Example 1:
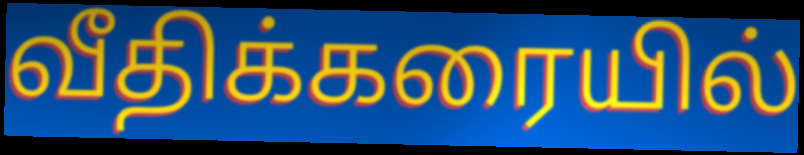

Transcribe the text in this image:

வீதிக்கரையில்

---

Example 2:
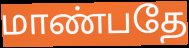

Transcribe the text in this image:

மாண்பதே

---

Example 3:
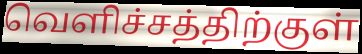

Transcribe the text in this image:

வெளிச்சத்திற்குள்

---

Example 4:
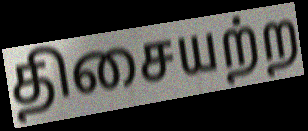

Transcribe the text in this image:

திசையற்ற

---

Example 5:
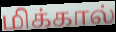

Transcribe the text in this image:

மிக்கால்